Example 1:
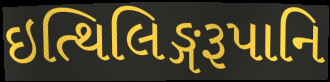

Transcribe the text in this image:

ઇત્થિલિઙ્ગરૂપાનિ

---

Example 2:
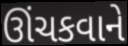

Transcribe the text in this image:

ઊંચકવાને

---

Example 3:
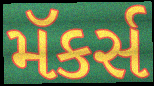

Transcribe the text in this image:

મૅકર્સ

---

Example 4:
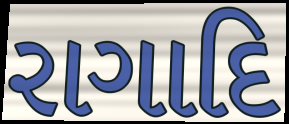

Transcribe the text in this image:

રાગાદિ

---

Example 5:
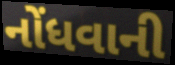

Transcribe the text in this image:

નોંધવાની